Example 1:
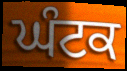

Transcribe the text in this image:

ਘੰਟਕ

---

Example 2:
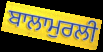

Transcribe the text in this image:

ਬਾਲਾਮੁਰਲੀ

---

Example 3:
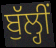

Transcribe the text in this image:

ਬੁੱਲ੍ਹੀਂ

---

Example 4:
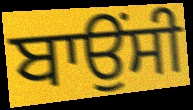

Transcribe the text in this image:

ਬਾਉਂਸੀ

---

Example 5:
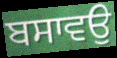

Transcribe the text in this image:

ਬਸਾਵਉ